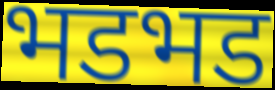
भडभड